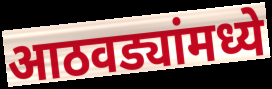
आठवड्यांमध्ये